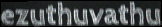
ezuthuvathu